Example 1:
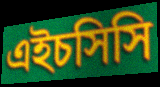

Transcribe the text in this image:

এইচসিসি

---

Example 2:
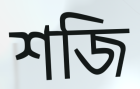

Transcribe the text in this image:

শজি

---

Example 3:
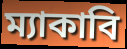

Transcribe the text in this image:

ম্যাকাবি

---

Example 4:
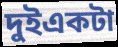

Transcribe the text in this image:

দুইএকটা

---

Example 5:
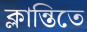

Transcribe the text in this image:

ক্লান্তিতে